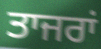
ਤਾਜਰਾਂ